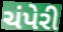
ચંપેરી